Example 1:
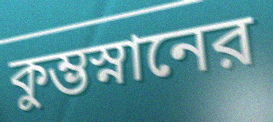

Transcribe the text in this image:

কুম্ভস্নানের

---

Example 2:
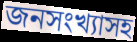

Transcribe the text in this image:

জনসংখ্যাসহ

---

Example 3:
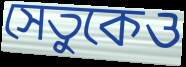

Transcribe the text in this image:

সেতুকেও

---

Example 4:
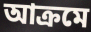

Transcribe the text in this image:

আক্রমে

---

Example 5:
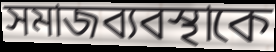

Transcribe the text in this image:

সমাজব্যবস্থাকে